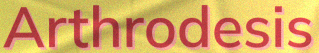
Arthrodesis